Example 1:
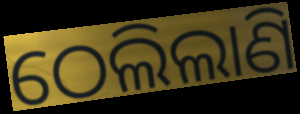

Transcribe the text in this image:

ଠେଲିଲାଣି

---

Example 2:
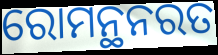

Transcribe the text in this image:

ରୋମନ୍ଥନରତ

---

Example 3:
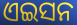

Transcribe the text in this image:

ଏଇସନ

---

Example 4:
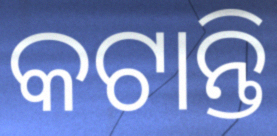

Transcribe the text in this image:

କଟାନ୍ତି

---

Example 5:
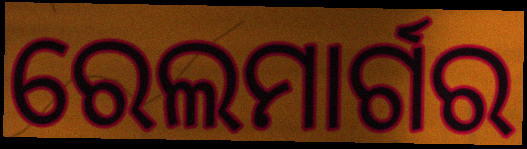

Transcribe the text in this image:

ରେଲମାର୍ଗର